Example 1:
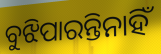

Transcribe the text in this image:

ବୁଝିପାରନ୍ତିନାହିଁ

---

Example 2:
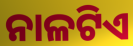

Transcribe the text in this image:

ନାଳଟିଏ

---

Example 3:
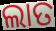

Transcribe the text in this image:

ଲାତ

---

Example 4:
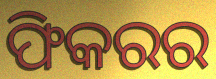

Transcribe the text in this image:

ଫିକରର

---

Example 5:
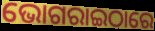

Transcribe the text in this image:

ଭୋଗରାଇଠାରେ